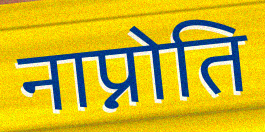
नाप्नोति